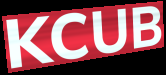
KCUB